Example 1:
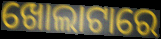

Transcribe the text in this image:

ଖୋଲାଟାରେ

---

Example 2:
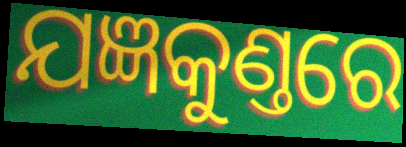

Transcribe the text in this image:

ଯଜ୍ଞକୁଣ୍ତରେ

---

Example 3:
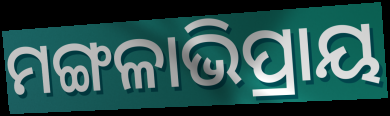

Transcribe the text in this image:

ମଙ୍ଗଳାଭିପ୍ରାୟ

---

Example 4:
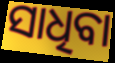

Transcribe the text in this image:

ସାଧିବା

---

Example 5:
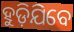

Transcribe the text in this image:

ହୁଡ଼ିଯିବେ